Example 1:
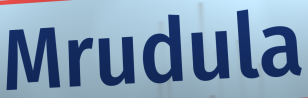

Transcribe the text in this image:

Mrudula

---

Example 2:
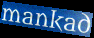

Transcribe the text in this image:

mankad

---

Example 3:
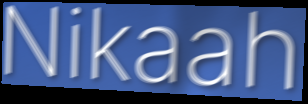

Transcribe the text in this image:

Nikaah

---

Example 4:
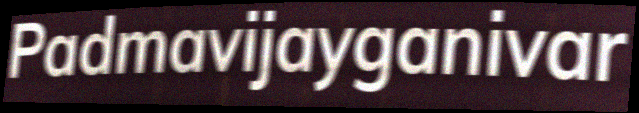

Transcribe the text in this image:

Padmavijayganivar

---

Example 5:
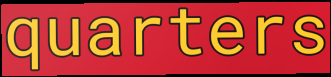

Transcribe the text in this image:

quarters